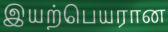
இயற்பெயரான